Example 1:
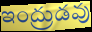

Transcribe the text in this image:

ఇంద్రుడవు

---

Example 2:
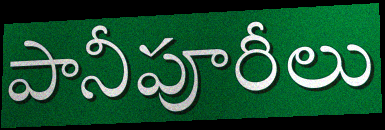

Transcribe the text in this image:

పానీపూరీలు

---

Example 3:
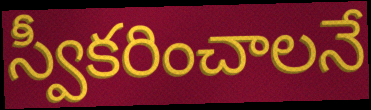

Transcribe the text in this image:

స్వీకరించాలనే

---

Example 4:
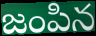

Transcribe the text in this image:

జంపిన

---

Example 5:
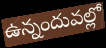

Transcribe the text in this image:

ఉన్నందువల్లో